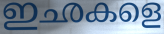
ഇഛകളെ